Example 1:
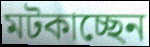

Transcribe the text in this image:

মটকাচ্ছেন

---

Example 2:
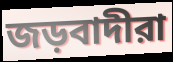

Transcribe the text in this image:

জড়বাদীরা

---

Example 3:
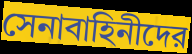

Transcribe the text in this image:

সেনাবাহিনীদের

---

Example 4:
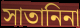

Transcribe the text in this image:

সাতানিনা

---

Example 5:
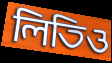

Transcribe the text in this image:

লিতিও